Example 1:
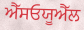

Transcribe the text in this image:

ਐੱਸਓਯੂਐੱਲ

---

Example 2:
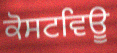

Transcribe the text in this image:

ਕੋਸਟਵਿਊ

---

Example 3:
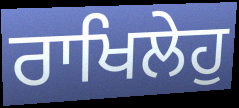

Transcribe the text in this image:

ਰਾਖਿਲੇਹੁ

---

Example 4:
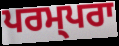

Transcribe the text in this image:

ਪਰਮ੍ਪਰਾ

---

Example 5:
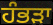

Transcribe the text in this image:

ਹੰਭੜਾ